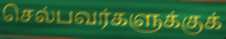
செல்பவர்களுக்குக்